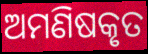
ଅମଣିଷକୃତ